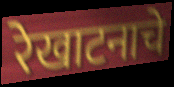
रेखाटनाचे